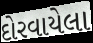
દોરવાયેલા